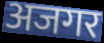
अजगर